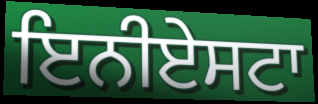
ਇਨੀਏਸਟਾ